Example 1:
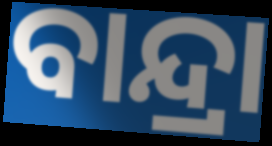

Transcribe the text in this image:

ବାନ୍ଦ୍ରା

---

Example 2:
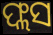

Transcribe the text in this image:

ଫ୍ଲସ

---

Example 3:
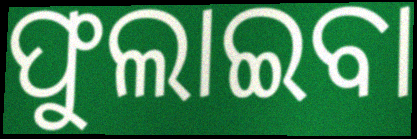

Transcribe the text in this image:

ଫୁଲାଇବା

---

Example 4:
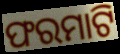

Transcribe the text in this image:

ଫରମାଟି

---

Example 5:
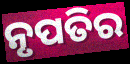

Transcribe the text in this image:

ନୃପତିର